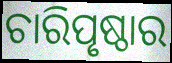
ଚାରିପୃଷ୍ଠାର